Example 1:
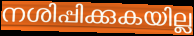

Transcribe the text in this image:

നശിപ്പിക്കുകയില്ല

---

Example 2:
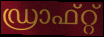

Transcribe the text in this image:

ഡ്രാഫ്റ്റ്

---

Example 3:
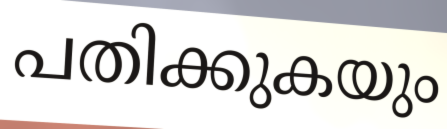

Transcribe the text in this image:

പതിക്കുകയും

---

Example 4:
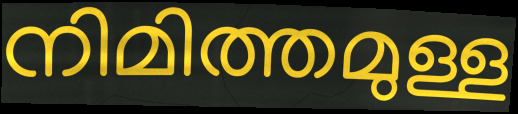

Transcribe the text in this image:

നിമിത്തമുള്ള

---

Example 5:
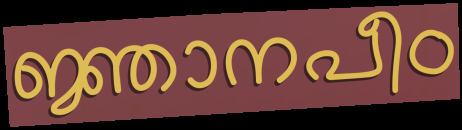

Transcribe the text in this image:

ജ്ഞാനപീഠ